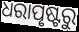
ଧରାପୃଷ୍ଟରୁ